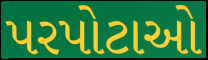
પરપોટાઓ